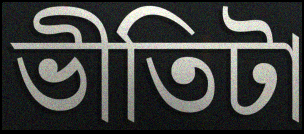
ভীতিটা